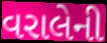
વરાલેની